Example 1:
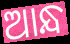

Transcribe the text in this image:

ଆନ୍ଧ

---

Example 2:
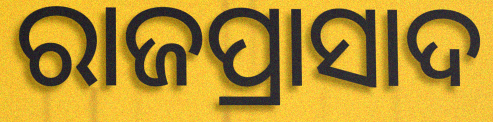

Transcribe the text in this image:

ରାଜପ୍ରାସାଦ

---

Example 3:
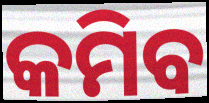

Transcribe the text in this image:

କମିବ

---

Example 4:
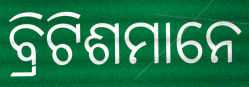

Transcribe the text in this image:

ବ୍ରିଟିଶମାନେ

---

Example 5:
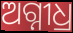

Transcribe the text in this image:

ଅଗ୍ନୀଧ୍ର